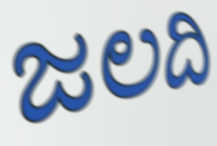
ಜಲದಿ